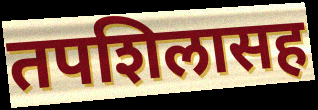
तपशिलासह